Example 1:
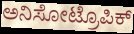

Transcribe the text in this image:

ಅನಿಸೋಟ್ರೊಪಿಕ್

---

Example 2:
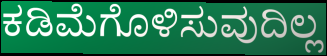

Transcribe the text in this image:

ಕಡಿಮೆಗೊಳಿಸುವುದಿಲ್ಲ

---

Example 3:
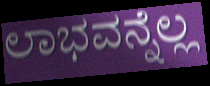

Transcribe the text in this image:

ಲಾಭವನ್ನೆಲ್ಲ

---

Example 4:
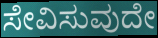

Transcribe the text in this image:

ಸೇವಿಸುವುದೇ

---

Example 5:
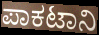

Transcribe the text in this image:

ಪಾಕಟಾನಿ